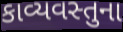
કાવ્યવસ્તુના